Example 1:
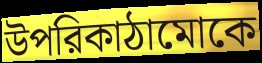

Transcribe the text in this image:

উপরিকাঠামোকে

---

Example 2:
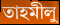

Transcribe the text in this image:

তাহমীলু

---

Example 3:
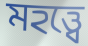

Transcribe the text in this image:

মহত্ত্বে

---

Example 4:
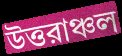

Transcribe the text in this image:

উত্তরাঞ্চল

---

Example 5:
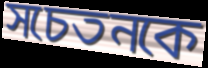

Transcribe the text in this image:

সচেতনকে